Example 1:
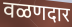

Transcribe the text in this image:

वळणदार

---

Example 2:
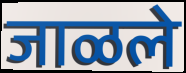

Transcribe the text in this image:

जाळले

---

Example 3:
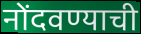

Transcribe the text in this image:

नोंदवण्याची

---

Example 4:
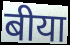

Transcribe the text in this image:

बीया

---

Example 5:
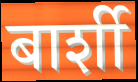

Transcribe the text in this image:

बार्शी